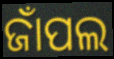
ଜାଁପଲ